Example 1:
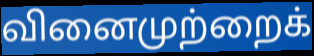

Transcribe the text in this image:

வினைமுற்றைக்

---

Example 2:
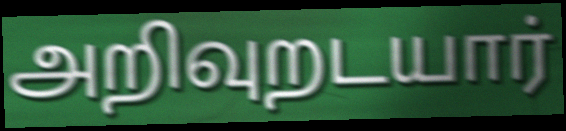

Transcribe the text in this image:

அறிவுறடயார்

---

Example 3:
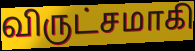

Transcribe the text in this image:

விருட்சமாகி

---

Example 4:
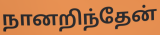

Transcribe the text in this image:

நானறிந்தேன்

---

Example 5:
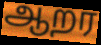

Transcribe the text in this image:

ஆறர